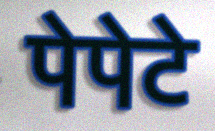
पेपेटे